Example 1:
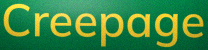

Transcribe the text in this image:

Creepage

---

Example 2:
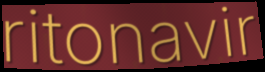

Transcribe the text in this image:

ritonavir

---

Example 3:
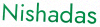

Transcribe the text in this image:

Nishadas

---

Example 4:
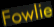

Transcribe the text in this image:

Fowlie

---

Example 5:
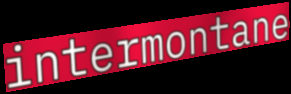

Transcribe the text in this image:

intermontane